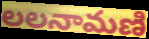
లలనామణి